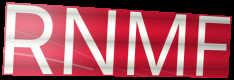
RNMF